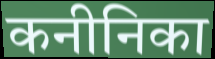
कनीनिका